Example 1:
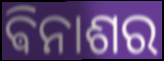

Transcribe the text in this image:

ଵିନାଶର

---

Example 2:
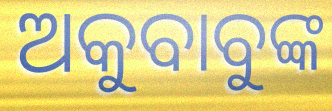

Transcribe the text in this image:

ଅକୁବାବୁଙ୍କ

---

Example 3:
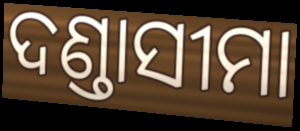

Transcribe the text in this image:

ଦଣ୍ଡାସୀମା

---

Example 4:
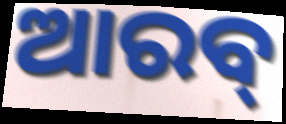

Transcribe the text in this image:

ଆରବ୍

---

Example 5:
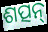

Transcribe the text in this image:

ଶତ୍ପନ୍